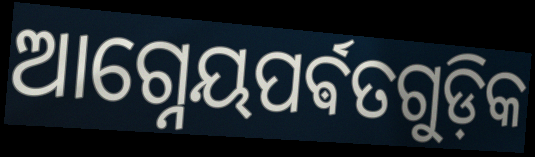
ଆଗ୍ନେୟପର୍ଵତଗୁଡ଼ିକ